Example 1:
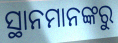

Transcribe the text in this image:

ସ୍ଥାନମାନଙ୍କରୁ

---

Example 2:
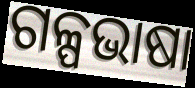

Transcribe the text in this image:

ଗଳ୍ପଭାଷା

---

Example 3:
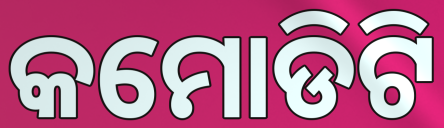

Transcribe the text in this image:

କମୋଡିଟି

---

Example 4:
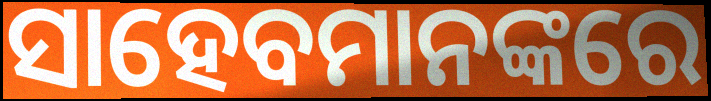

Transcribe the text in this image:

ସାହେବମାନଙ୍କରେ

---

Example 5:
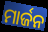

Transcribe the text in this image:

ମାର୍ଜନ